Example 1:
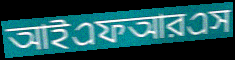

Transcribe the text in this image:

আইএফআরএস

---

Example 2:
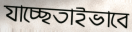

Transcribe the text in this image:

যাচ্ছেতাইভাবে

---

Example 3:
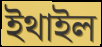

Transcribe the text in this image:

ইথাইল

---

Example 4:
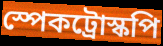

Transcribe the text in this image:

স্পেকট্রোস্কপি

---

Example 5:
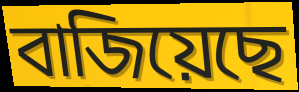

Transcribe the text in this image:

বাজিয়েছে